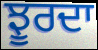
ਝੂਰਦਾ